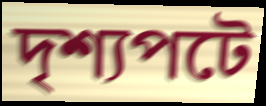
দৃশ্যপটে